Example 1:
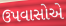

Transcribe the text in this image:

ઉપવાસોએ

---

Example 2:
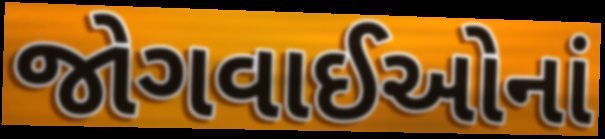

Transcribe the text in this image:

જોગવાઈઓનાં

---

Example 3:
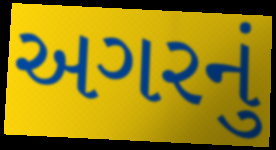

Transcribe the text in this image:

અગરનું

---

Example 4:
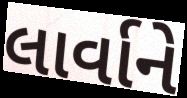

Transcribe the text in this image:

લાર્વાને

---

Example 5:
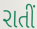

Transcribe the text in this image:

રાતીં